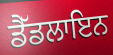
ਡੈੱਡਲਾਇਨ